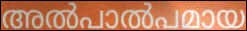
അൽപാൽപമായ